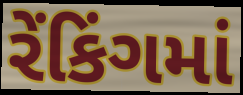
રેંકિંગમાં